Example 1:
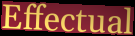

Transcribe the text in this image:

Effectual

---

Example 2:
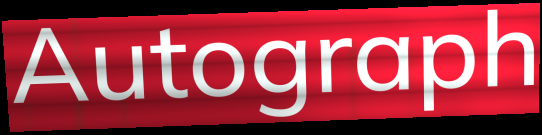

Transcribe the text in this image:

Autograph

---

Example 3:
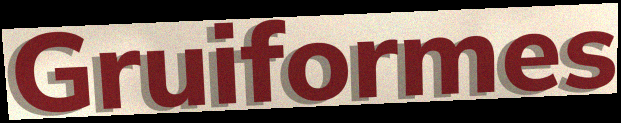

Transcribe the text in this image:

Gruiformes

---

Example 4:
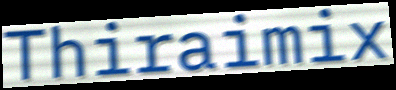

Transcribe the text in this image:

Thiraimix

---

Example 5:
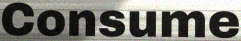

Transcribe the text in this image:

Consume